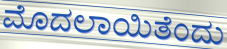
ಮೊದಲಾಯಿತೆಂದು